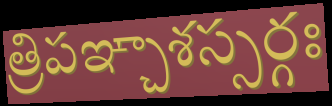
త్రిపఞ్చాశస్సర్గః